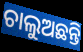
ଚାଲୁଅଛନ୍ତି